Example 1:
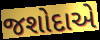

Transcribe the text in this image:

જશોદાએ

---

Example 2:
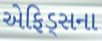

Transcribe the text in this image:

એફિડ્સના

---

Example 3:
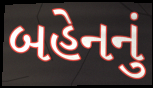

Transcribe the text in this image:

બહેનનું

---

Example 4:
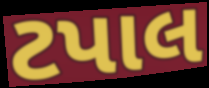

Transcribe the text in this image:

ટપાલ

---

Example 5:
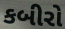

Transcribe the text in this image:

કબીરો